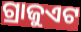
ଗ୍ରାଜୁଏଟ